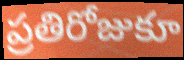
ప్రతిరోజుకూ